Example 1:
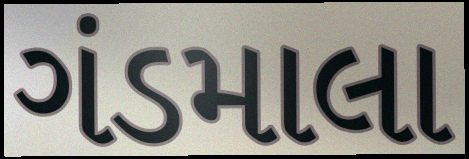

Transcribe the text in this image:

ગંડમાલા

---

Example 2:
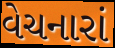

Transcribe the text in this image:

વેચનારાં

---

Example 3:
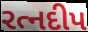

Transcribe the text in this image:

રત્નદીપ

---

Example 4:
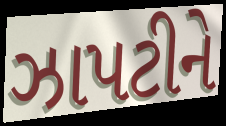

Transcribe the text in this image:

ઝાપટીને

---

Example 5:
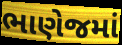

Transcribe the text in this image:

ભાણેજમાં